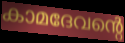
കാമദേവന്റെ